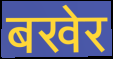
बखेर